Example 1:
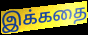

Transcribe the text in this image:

இக்கதை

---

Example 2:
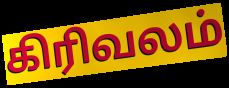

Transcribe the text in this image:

கிரிவலம்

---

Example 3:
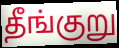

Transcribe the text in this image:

தீங்குறு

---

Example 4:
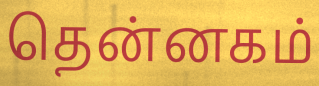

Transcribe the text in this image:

தென்னகம்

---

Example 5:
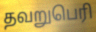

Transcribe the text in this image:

தவறுபெரி